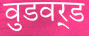
वुडवर्ड